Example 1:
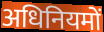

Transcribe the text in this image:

अधिनियमों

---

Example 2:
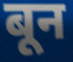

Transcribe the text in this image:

बून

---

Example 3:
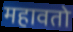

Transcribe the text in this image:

महावतो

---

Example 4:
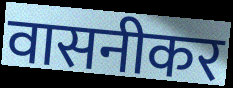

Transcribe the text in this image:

वासनीकर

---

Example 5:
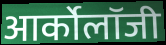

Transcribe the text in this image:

आर्कोलॉजी